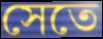
সেতে